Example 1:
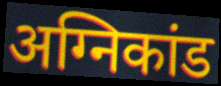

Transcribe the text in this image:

अग्निकांड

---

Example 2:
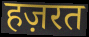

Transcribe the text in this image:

हज़रत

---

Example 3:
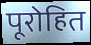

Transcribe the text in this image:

पूरोहित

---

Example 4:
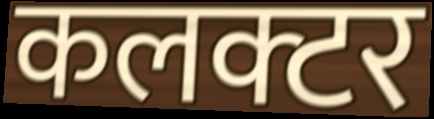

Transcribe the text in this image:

कलक्‍टर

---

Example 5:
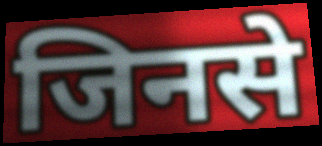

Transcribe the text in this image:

जिनसे